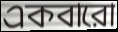
একবারো